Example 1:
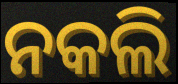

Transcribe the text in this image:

ନକଲି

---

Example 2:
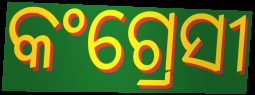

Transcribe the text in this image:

କଂଗ୍ରେସୀ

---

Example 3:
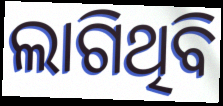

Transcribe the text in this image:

ଲାଗିଥିବି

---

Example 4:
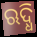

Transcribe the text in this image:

ଋଦ୍ଧି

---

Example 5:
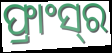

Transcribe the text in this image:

ଫ୍ରାଂସ୍‍ର